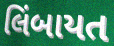
લિંબાયત